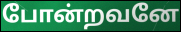
போன்றவனே